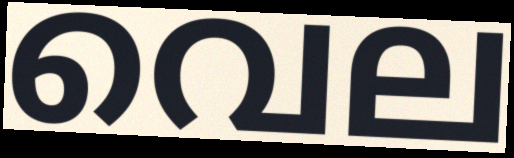
വെല